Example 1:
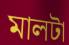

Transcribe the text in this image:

মালটা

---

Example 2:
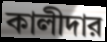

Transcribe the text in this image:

কালীদার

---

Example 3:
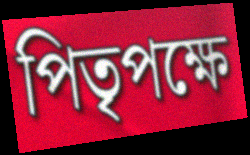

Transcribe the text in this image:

পিতৃপক্ষে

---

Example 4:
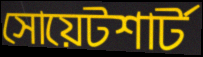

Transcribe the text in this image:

সোয়েটশার্ট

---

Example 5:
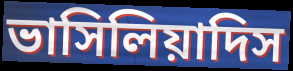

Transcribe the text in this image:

ভাসিলিয়াদিস